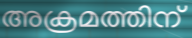
അക്രമത്തിന്